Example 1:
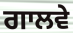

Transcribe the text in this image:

ਗਾਲਵੇ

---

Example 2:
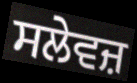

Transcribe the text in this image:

ਸਲੇਵਜ਼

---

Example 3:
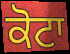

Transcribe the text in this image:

ਕੋਟਾ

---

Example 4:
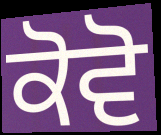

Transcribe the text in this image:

ਕੋਵੋ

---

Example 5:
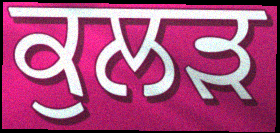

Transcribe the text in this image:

ਕੁਲੜ